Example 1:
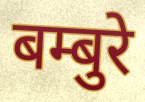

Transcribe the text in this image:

बम्बुरे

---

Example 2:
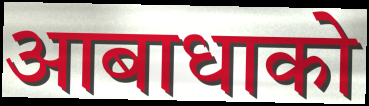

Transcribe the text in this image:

आबाधाको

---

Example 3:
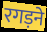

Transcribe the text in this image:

रगड़ने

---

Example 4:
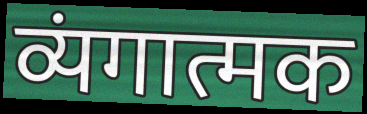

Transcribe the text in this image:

व्यंगात्मक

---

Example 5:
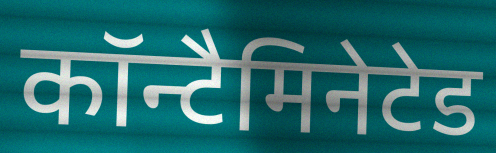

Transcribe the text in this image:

कॉन्टैमिनेटेड